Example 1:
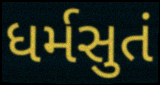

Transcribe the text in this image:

ધર્મસુતં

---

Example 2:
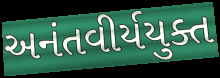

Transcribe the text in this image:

અનંતવીર્યયુક્ત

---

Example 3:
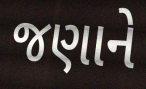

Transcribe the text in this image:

જણાને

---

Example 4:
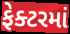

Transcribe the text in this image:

ફેક્ટરમાં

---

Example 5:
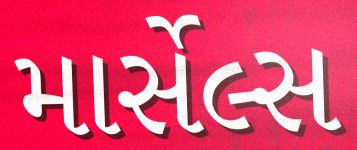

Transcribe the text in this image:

માર્સેલ્સ